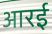
आरई